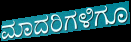
ಮಾದರಿಗಳಿಗೂ